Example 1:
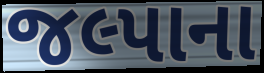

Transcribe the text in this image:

જલ્પાના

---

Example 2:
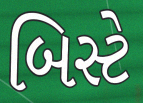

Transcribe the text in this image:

બિસ્ટે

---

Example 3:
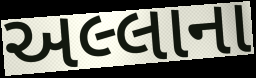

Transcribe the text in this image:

અલ્લાના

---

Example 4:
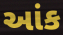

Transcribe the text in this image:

આંક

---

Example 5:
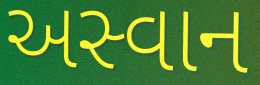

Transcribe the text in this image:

અસ્વાન